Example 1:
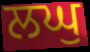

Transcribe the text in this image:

ਲਘੁ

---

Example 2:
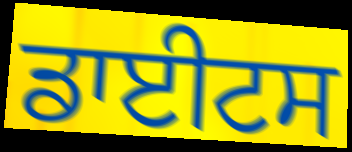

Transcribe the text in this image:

ਡਾਈਟਸ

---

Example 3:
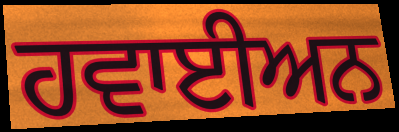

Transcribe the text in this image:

ਹਵਾਈਅਨ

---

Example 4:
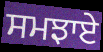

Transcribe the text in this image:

ਸਮਝਾਏ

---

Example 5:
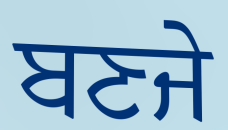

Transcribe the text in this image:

ਬਣਜੇ